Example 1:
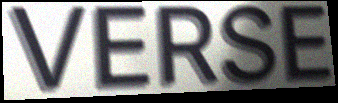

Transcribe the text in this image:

VERSE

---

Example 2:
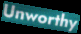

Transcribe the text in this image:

Unworthy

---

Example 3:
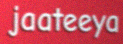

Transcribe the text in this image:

jaateeya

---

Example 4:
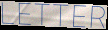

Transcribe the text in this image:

LETTER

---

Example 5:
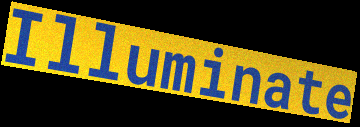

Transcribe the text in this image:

Illuminate